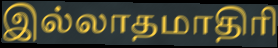
இல்லாதமாதிரி